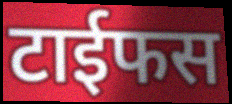
टाईफस